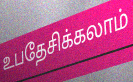
உபதேசிக்கலாம்